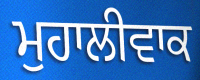
ਮੁਹਾਲੀਵਾਕ